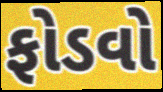
ફોડવો